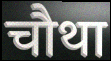
चौथा